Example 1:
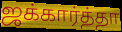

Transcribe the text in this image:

ஜக்கார்த்தா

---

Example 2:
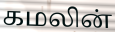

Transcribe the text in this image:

கமலின்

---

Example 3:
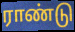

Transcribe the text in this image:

ராண்டு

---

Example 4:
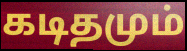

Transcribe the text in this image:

கடிதமும்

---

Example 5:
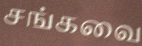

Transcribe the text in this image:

சங்கவை